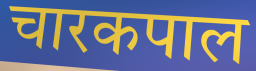
चारकपाल